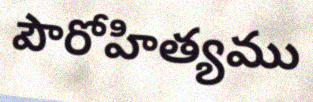
పౌరోహిత్యము